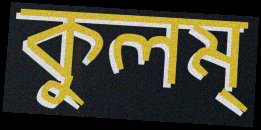
কুলম্